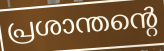
പ്രശാന്തന്റെ